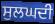
ਸੁਲਘਦੀ